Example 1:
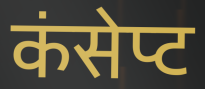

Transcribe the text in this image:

कंसेप्ट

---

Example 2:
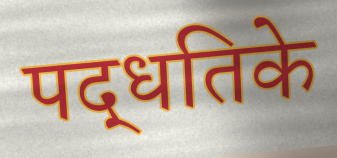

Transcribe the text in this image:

पद्धतिके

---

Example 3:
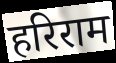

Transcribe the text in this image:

हरिराम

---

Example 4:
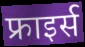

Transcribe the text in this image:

फ्राइर्स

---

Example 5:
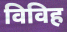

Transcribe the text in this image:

विविह